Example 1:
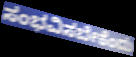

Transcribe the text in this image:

ಸಂಭವಿಸಬೇಕೆಂದು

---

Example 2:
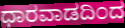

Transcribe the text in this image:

ಧಾರವಾಡದಿಂದ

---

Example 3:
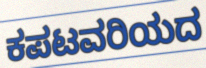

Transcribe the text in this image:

ಕಪಟವರಿಯದ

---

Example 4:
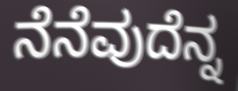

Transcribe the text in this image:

ನೆನೆವುದೆನ್ನ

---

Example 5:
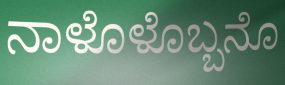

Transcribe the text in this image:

ನಾಳೊಳೊಬ್ಬನೊ